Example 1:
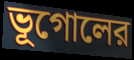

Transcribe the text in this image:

ভূগোলের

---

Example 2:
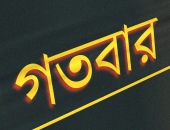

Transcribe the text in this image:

গতবার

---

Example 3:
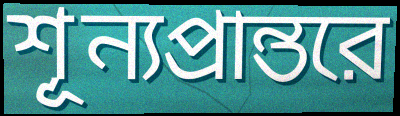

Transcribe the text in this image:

শূন্যপ্রান্তরে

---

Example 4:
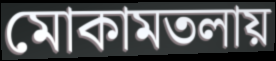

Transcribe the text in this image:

মোকামতলায়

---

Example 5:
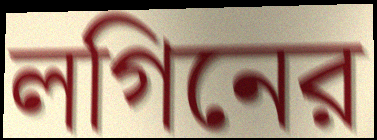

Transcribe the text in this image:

লগিনের